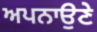
ਅਪਨਾਉਣੇ